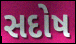
સદોષ